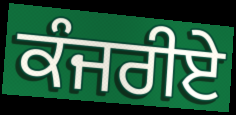
ਕੰਜਰੀਏ